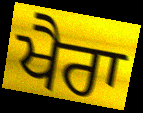
ਖੈਰਾ